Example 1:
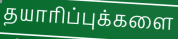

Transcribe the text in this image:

தயாரிப்புக்களை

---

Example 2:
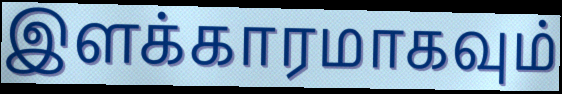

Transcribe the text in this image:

இளக்காரமாகவும்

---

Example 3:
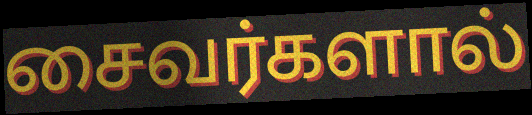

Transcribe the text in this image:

சைவர்களால்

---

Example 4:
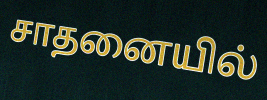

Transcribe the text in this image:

சாதனையில்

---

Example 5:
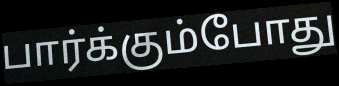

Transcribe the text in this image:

பார்க்கும்போது